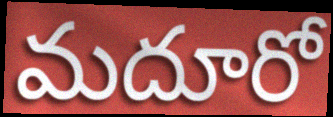
మదూరో